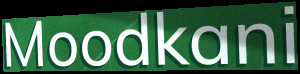
Moodkani